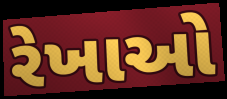
રેખાઓ